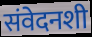
संवेदनशी